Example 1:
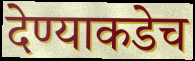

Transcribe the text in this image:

देण्याकडेच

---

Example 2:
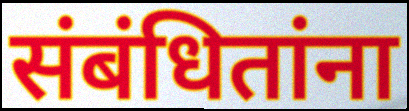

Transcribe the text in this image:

संबंधितांना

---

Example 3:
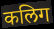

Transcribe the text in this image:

कलिग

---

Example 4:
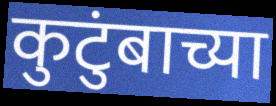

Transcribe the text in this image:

कुटुंबाच्या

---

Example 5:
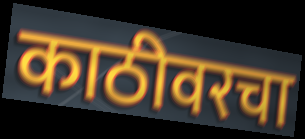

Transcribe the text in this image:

काठीवरचा